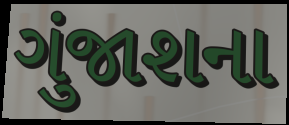
ગુંજાશના